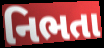
નિભતા